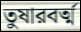
তুষারবর্ত্ম